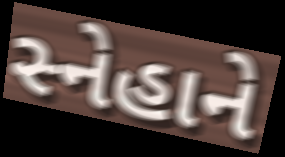
સ્નેહાને